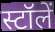
स्टॉलें